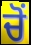
ਚੋਂ